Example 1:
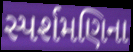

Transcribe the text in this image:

સ્પર્શમણિના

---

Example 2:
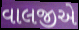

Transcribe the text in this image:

વાલજીએ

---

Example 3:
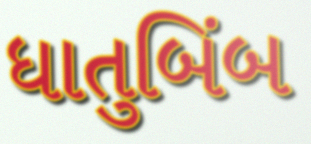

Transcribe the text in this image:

ધાતુબિંબ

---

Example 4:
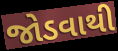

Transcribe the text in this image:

જોડવાથી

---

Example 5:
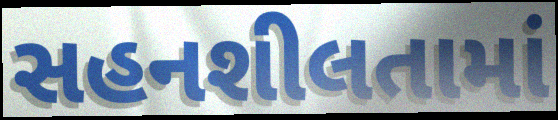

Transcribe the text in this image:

સહનશીલતામાં